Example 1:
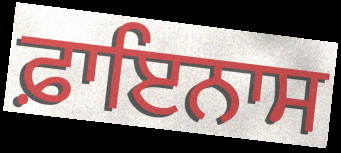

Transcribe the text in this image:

ਫ਼ਾਇਨਾਸ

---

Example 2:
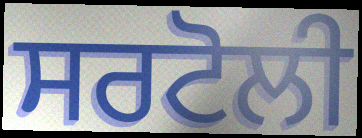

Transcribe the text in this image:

ਸਰਟੋਲੀ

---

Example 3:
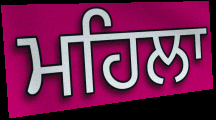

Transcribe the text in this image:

ਮਹਿਲਾ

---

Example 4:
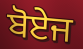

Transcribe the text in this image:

ਬੋਏਜ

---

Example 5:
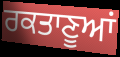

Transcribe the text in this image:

ਰਕਤਾਣੂਆਂ